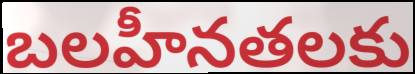
బలహీనతలకు